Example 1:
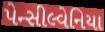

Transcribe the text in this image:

પેન્સીલ્વેનિયા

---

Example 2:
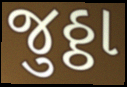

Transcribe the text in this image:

જુઠ્ઠા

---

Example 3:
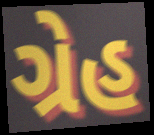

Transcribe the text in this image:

ગ્રેહ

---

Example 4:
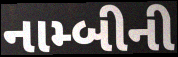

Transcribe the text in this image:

નામ્બીની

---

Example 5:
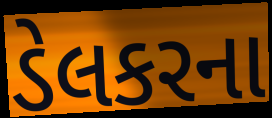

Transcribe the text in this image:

ડેલકરના